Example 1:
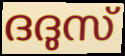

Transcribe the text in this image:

ദദുസ്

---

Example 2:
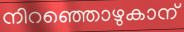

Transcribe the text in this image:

നിറഞ്ഞൊഴുകാന്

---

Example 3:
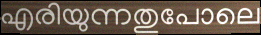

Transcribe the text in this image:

എരിയുന്നതുപോലെ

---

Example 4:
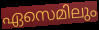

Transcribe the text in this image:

ഏസെമിലും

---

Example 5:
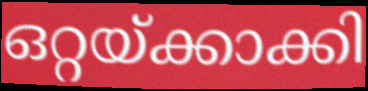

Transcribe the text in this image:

ഒറ്റയ്ക്കാക്കി